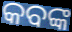
କବଙ୍କ